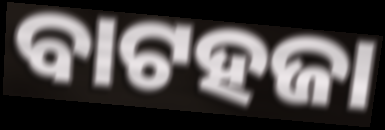
ବାଟହଜା